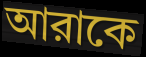
আরাকে